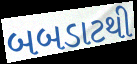
બબડાટથી